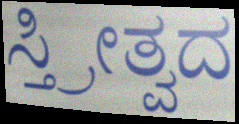
ಸ್ತ್ರೀತ್ವದ